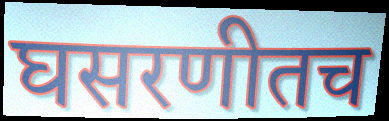
घसरणीतच